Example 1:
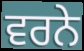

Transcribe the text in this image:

ਵਰਨੇ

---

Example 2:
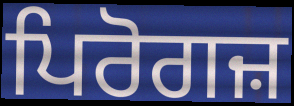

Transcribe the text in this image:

ਪਿਰੋਗਜ਼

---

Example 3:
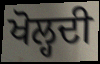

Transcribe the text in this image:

ਖੋਲ੍ਹਦੀ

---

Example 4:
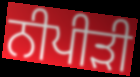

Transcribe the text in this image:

ਨੀਪੀੜੀ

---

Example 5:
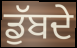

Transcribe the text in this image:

ਡੁੱਬਦੇ